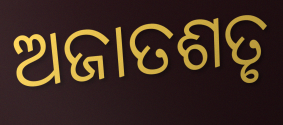
ଅଜାତଶତୃ